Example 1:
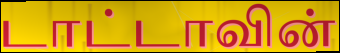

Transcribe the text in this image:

டாட்டாவின்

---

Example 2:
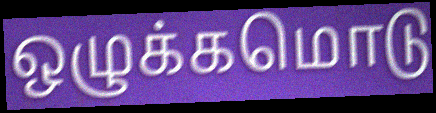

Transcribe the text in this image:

ஒழுக்கமொடு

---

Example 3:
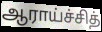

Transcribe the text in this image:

ஆராய்ச்சித்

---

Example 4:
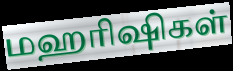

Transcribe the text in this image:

மஹரிஷிகள்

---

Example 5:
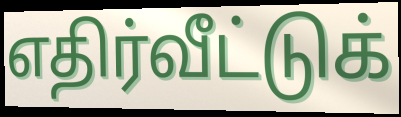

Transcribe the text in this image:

எதிர்வீட்டுக்